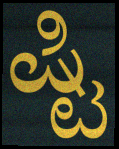
ಷ್ಟಿ